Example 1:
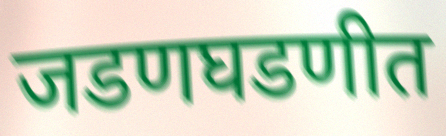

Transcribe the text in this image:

जडणघडणीत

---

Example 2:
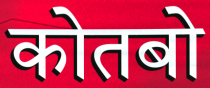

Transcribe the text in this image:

कोतबो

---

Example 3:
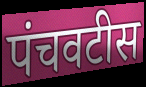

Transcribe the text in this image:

पंचवटीस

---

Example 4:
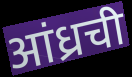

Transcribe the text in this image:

आंध्रची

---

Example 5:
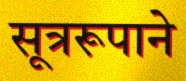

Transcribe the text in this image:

सूत्ररूपाने